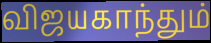
விஜயகாந்தும்